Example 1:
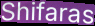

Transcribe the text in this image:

Shifaras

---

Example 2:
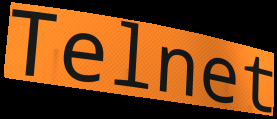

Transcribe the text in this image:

Telnet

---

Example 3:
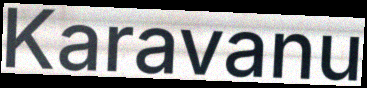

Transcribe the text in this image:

Karavanu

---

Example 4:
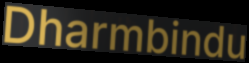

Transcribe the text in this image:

Dharmbindu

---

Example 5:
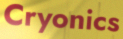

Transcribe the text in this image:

Cryonics